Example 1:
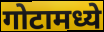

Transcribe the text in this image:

गोटामध्ये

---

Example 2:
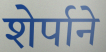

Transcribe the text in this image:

शेर्पाने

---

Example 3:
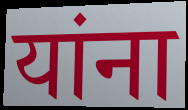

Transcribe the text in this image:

यांना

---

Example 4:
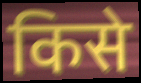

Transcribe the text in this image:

किसे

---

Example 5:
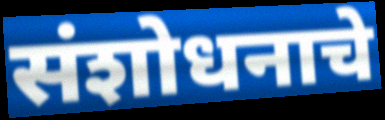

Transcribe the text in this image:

संशोधनाचे